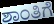
ಶಾಂತಿಗೆ